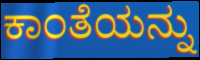
ಕಾಂತೆಯನ್ನು